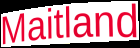
Maitland